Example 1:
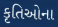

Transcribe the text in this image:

કૃતિઓના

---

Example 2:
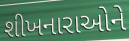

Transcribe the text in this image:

શીખનારાઓને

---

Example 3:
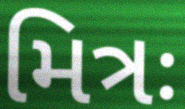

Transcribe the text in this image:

મિત્રઃ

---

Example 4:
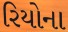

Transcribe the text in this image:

રિયોના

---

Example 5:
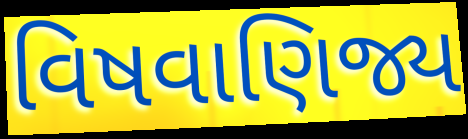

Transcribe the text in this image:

વિષવાણિજ્ય